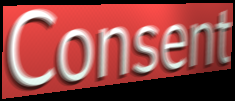
Consent